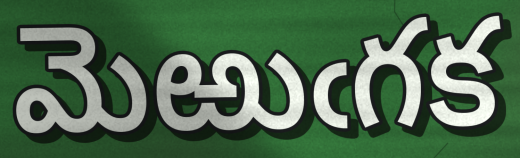
మెఱుఁగక